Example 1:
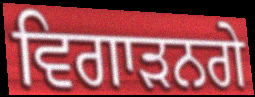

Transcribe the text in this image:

ਵਿਗਾੜਨਗੇ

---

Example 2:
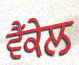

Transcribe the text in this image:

ਵੈਂਕੇਲ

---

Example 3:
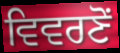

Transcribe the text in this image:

ਵਿਵਰਣੋਂ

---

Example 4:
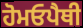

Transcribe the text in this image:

ਹੋਮਓਪੈਥੀ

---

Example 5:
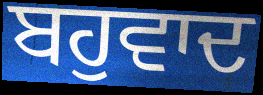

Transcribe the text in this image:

ਬਹੁਵਾਦ